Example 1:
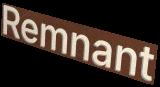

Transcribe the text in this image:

Remnant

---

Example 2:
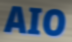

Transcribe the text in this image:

AIO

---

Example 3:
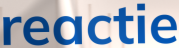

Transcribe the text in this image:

reactie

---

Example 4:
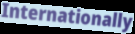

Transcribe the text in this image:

Internationally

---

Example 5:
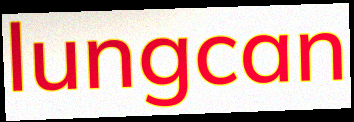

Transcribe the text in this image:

lungcan